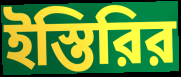
ইস্তিরির